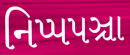
નિપ્પપઞ્ચા